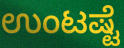
ಉಂಟಷ್ಟೆ